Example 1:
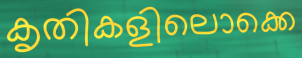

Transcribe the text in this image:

കൃതികളിലൊക്കെ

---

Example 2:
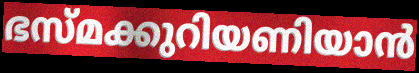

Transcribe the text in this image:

ഭസ്മക്കുറിയണിയാൻ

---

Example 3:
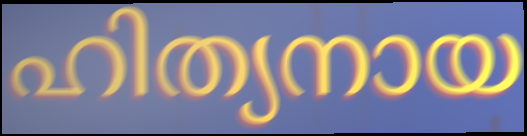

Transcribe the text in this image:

ഹിത്യനായ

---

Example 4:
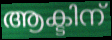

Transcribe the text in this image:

ആക്ടിന്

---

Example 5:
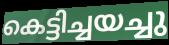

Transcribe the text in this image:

കെട്ടിച്ചയച്ചു